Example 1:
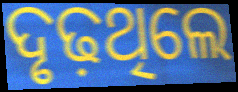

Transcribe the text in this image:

ଦୃଢ଼ଥିଲେ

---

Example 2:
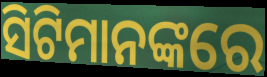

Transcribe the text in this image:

ସିଟିମାନଙ୍କରେ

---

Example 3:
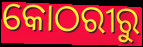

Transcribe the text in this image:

କୋଠରୀରୁ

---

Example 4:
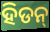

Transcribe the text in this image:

ହିଡନ୍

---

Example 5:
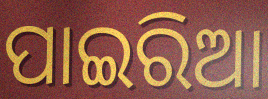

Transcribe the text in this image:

ପାଇରିଆ